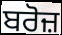
ਬਰੋਜ਼